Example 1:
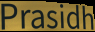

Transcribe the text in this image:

Prasidh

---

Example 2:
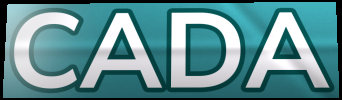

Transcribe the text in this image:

CADA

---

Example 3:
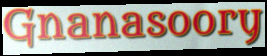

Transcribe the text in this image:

Gnanasoory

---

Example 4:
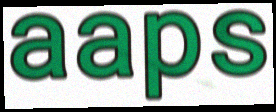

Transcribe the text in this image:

aaps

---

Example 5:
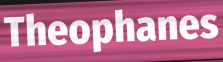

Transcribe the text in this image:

Theophanes